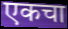
एकचा